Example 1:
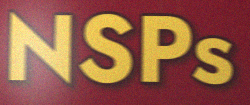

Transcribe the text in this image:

NSPs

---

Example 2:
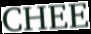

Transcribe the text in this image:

CHEE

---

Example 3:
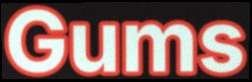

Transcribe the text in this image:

Gums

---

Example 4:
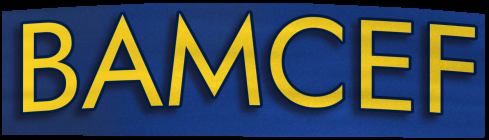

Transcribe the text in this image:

BAMCEF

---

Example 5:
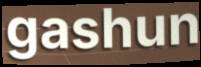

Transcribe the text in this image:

gashun